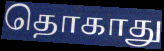
தொகாது